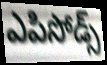
ఎపిసోడ్స్